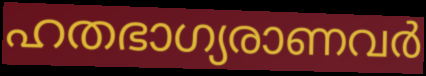
ഹതഭാഗ്യരാണവർ